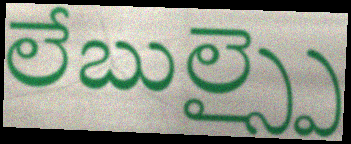
లేబుల్స్పై